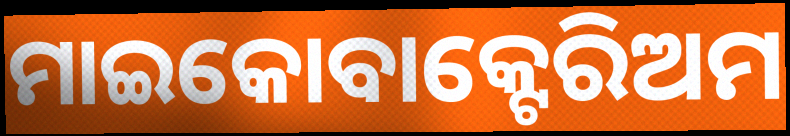
ମାଇକୋବାକ୍ଟେରିଅମ